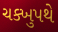
ચક્ખુપથે